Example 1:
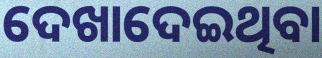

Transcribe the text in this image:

ଦେଖାଦେଇଥିବା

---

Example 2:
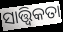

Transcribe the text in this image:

ସାତ୍ତ୍ବିକତା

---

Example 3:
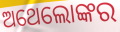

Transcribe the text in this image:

ଅଥେଲୋଙ୍କର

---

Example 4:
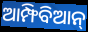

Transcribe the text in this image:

ଆମ୍ଫିବିଆନ୍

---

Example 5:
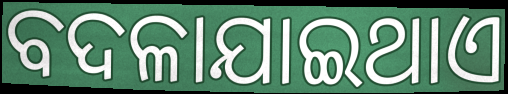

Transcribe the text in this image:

ବଦଳାଯାଇଥାଏ